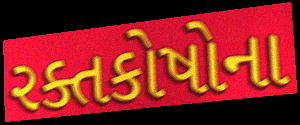
રક્તકોષોના